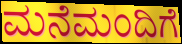
ಮನೆಮಂದಿಗೆ